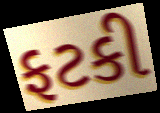
ફટકી